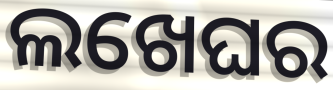
ଲଖେଘର